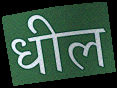
धील